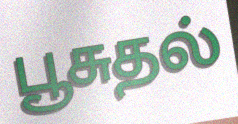
பூசுதல்